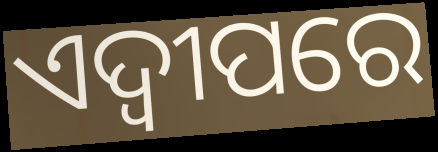
ଏଦ୍ୱୀପରେ